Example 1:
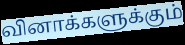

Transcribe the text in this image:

வினாக்களுக்கும்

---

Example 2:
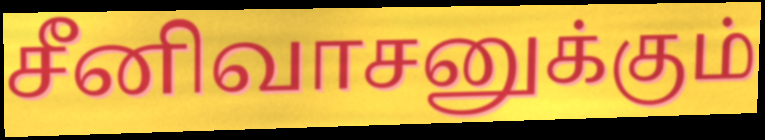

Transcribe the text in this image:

சீனிவாசனுக்கும்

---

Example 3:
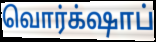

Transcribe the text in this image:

வொர்க்‌ஷாப்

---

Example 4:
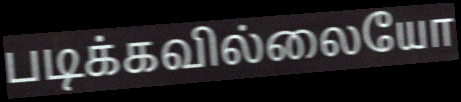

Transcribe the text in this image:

படிக்கவில்லையோ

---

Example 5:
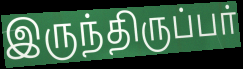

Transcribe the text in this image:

இருந்திருப்பர்